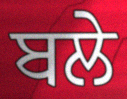
ਬਲੇ